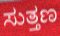
ಸುತ್ತಣ